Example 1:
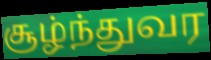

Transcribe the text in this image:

சூழ்ந்துவர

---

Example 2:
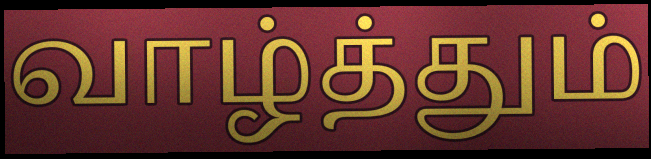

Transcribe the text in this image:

வாழ்த்தும்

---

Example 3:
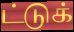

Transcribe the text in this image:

ட்டுக்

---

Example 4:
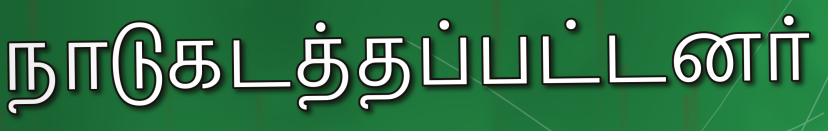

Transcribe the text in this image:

நாடுகடத்தப்பட்டனர்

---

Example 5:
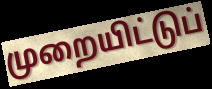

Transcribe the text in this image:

முறையிட்டுப்